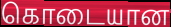
கொடையான